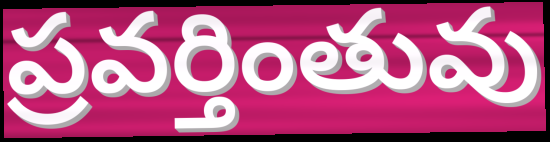
ప్రవర్తింతువు